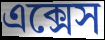
এক্সেস